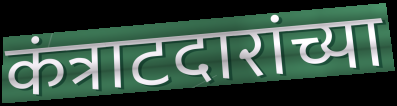
कंत्राटदारांच्या